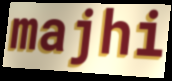
majhi